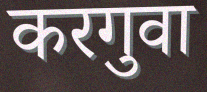
करगुवा